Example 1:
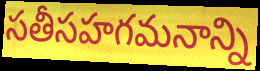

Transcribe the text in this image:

సతీసహగమనాన్ని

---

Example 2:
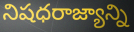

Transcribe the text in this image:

నిషధరాజ్యాన్ని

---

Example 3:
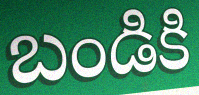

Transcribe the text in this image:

బండికి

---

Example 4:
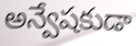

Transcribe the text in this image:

అన్వేషకుడా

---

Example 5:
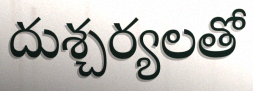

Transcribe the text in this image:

దుశ్చర్యలతో